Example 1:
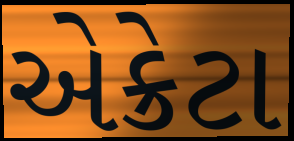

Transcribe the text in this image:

એક્રેટા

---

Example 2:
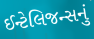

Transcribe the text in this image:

ઈન્ટેલિજન્સનું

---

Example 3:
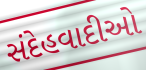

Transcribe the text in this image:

સંદેહવાદીઓ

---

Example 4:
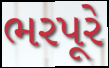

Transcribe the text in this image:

ભરપૂરે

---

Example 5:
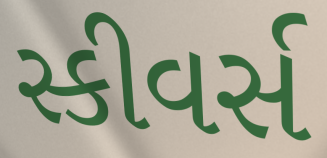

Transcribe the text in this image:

સ્કીવર્સ